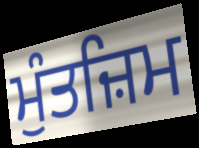
ਮੁੰਤਜ਼ਿਮ